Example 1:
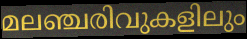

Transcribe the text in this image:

മലഞ്ചരിവുകളിലും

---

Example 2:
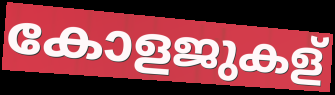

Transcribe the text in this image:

കോളജുകള്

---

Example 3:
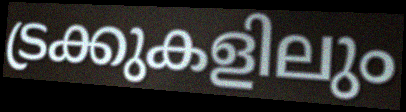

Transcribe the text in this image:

ട്രക്കുകളിലും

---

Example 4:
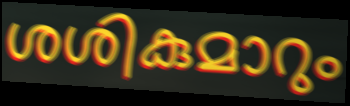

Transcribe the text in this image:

ശശികുമാറും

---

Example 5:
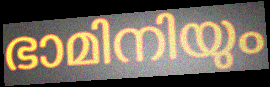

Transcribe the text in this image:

ഭാമിനിയും